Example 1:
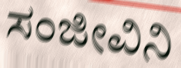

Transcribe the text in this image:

ಸಂಜೀವಿನಿ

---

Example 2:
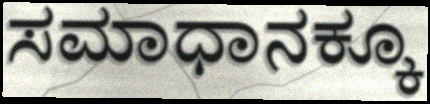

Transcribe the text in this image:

ಸಮಾಧಾನಕ್ಕೂ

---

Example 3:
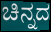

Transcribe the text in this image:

ಚಿನ್ನದ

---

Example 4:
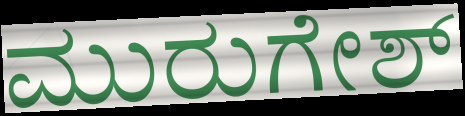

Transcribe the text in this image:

ಮುರುಗೇಶ್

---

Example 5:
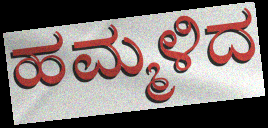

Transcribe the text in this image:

ಹಮ್ಮಳಿದ